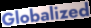
Globalized